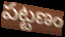
పట్టణం